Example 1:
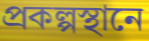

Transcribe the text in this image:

প্রকল্পস্থানে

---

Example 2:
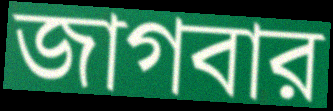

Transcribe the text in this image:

জাগবার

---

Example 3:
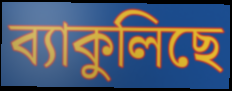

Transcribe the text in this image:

ব্যাকুলিছে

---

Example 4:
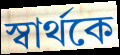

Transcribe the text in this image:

স্বার্থকে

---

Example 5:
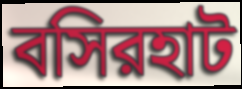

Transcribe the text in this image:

বসিরহাট